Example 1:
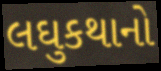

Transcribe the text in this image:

લઘુકથાનો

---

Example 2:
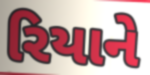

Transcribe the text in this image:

રિયાને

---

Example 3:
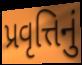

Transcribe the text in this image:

પ્રવૃત્તિનું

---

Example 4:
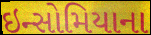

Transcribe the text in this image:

ઇન્સોમિયાના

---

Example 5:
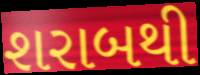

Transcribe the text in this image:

શરાબથી